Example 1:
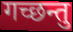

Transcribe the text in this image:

गच्छन्तु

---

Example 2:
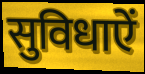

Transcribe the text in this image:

सुविधाऐं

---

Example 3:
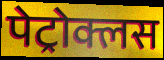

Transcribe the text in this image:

पेट्रोक्लस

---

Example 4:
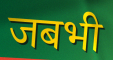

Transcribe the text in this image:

जबभी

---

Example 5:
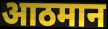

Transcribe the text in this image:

आठमान